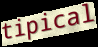
tipical